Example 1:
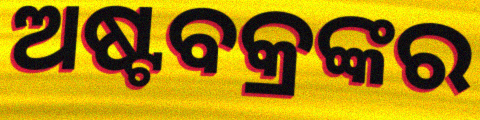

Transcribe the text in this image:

ଅଷ୍ଟବକ୍ରଙ୍କର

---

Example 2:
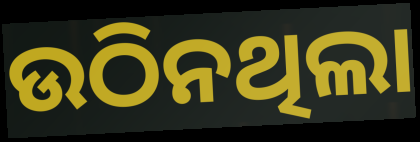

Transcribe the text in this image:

ଉଠିନଥିଲା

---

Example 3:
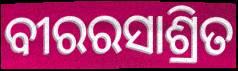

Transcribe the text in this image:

ବୀରରସାଶ୍ରିତ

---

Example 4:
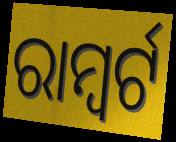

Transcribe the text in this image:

ରାମ୍ବର୍ଟ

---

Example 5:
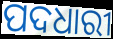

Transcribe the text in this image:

ପଦଧାରୀ